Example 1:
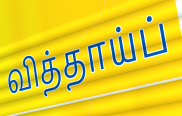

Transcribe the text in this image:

வித்தாய்ப்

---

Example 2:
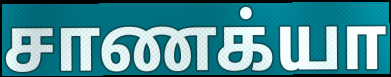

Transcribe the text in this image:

சாணக்யா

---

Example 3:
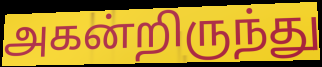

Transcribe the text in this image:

அகன்றிருந்து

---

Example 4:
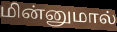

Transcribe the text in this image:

மின்னுமால்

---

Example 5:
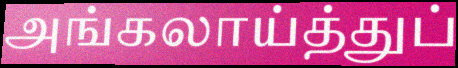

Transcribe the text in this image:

அங்கலாய்த்துப்